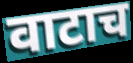
वाटाच